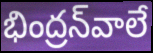
భింద్రన్‌వాలే